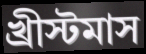
খ্রীস্টমাস